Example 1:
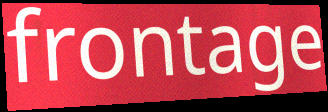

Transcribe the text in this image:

frontage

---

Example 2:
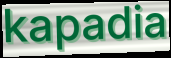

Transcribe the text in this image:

kapadia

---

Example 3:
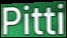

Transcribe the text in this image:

Pitti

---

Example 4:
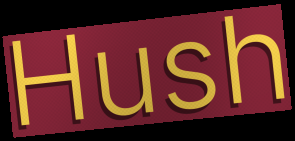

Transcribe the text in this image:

Hush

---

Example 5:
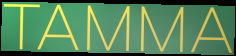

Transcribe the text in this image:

TAMMA